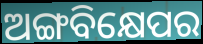
ଅଙ୍ଗବିକ୍ଷେପର